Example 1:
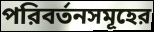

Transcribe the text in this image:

পরিবর্তনসমূহের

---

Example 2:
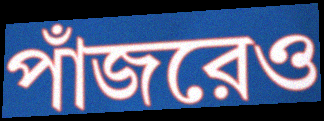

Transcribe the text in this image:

পাঁজরেও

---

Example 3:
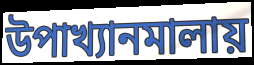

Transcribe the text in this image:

উপাখ্যানমালায়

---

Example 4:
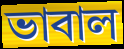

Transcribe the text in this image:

ভাবাল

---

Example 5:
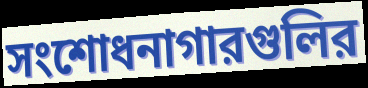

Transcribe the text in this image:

সংশোধনাগারগুলির